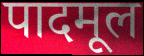
पादमूल